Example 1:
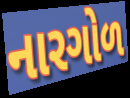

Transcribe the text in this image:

નારગોળ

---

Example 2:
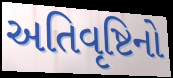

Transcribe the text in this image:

અતિવૃષ્ટિનો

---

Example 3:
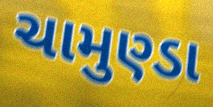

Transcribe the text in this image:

ચામુણ્ડા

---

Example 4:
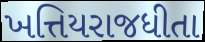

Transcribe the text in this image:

ખત્તિયરાજધીતા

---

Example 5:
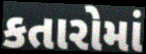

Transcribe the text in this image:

કતારોમાં